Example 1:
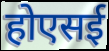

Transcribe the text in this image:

होएसई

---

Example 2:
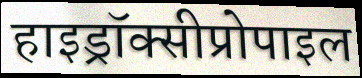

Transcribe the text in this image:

हाइड्रॉक्सीप्रोपाइल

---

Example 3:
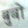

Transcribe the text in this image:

बुबो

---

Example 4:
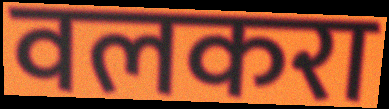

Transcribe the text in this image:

वलकरा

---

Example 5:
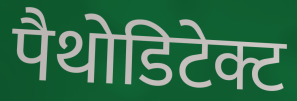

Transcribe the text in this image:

पैथोडिटेक्ट